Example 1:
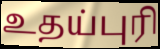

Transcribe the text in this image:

உதய்புரி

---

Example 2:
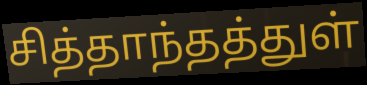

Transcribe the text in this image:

சித்தாந்தத்துள்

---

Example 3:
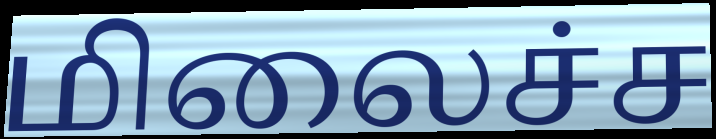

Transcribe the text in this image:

மிலைச்ச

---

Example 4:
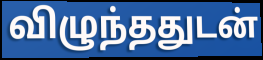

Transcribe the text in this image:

விழுந்ததுடன்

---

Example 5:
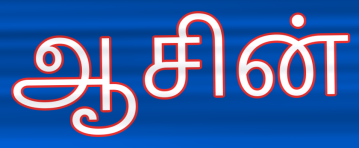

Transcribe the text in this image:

ஆசின்